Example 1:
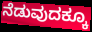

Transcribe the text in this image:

ನೆಡುವುದಕ್ಕೂ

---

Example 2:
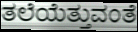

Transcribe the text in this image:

ತಲೆಯೆತ್ತುವಂತೆ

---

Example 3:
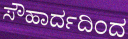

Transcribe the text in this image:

ಸೌಹಾರ್ದದಿಂದ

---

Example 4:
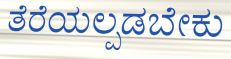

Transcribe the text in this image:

ತೆರೆಯಲ್ಪಡಬೇಕು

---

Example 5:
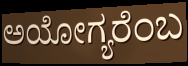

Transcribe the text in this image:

ಅಯೋಗ್ಯರೆಂಬ